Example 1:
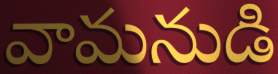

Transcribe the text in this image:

వామనుడి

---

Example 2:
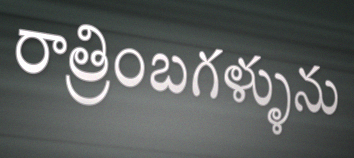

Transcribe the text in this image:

రాత్రింబగళ్ళును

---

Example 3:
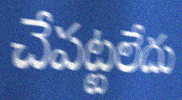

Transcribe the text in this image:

చేపట్టలేదు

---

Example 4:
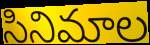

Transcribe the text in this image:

సినిమాల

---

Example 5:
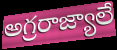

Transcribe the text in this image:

అగ్రరాజ్యాలే